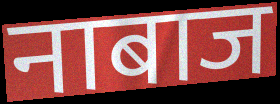
नाबाज